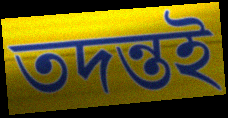
তদন্তই